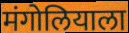
मंगोलियाला